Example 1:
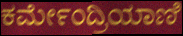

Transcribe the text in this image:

ಕರ್ಮೇಂದ್ರಿಯಾಣಿ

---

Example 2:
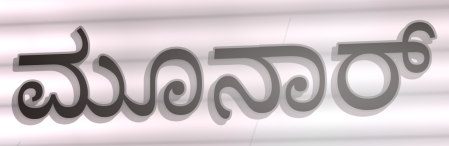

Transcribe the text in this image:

ಮೂನಾರ್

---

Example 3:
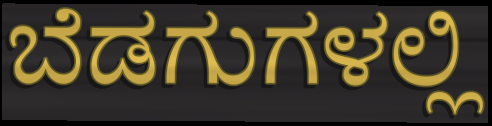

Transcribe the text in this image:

ಬೆಡಗುಗಳಲ್ಲಿ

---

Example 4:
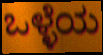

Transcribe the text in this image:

ಒಳ್ಳೆಯ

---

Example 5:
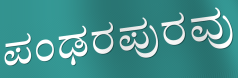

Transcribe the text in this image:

ಪಂಢರಪುರವು